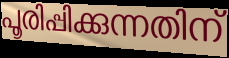
പൂരിപ്പിക്കുന്നതിന്